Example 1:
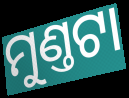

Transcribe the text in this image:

ମୁଣ୍ତଟା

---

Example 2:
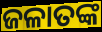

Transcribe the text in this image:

ଜଳାତଙ୍କ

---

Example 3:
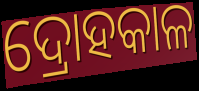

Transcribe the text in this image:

ଦ୍ରୋହକାଳ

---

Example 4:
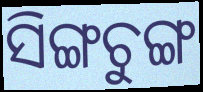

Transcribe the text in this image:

ସିଙ୍ଗଚୁଙ୍ଗ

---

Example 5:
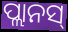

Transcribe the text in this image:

ପ୍ଲାନସ୍